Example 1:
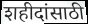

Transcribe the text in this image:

शहीदांसाठी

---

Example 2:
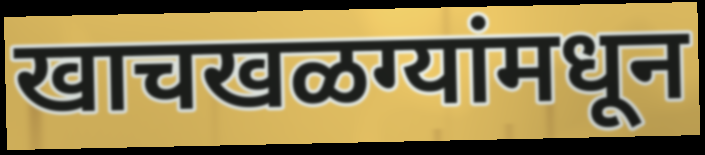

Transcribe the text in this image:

खाचखळग्यांमधून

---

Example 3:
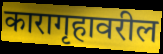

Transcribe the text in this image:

कारागृहावरील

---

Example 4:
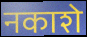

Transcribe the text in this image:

नकाशे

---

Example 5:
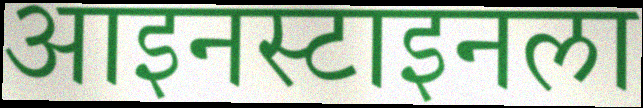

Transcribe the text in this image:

आइनस्टाइनला